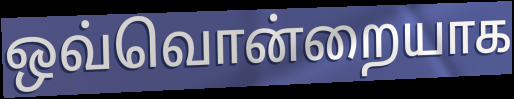
ஒவ்வொன்றையாக